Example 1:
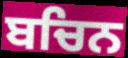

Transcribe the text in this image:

ਬਚਿਨ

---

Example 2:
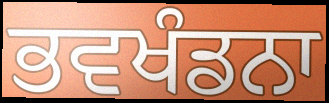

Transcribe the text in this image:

ਭਵਖੰਡਨਾ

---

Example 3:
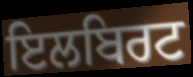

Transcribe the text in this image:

ਇਲਬਿਰਟ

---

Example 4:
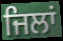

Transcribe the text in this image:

ਜਿਲਾਂ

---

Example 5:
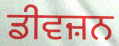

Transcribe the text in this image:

ਡੀਵਜ਼ਨ